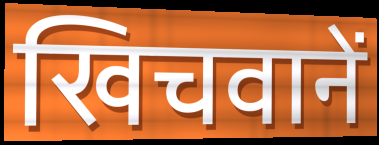
खिचवानें